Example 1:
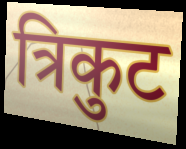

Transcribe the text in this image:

त्रिकुट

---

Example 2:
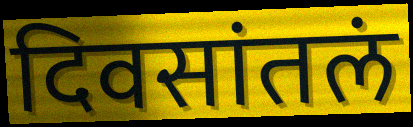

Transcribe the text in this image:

दिवसांतलं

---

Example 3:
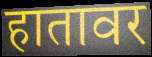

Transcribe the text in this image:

हातावर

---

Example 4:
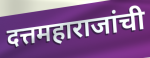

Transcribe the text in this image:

दत्तमहाराजांची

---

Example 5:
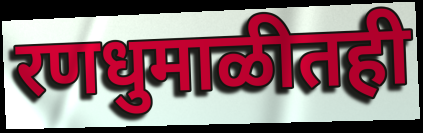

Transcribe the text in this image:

रणधुमाळीतही